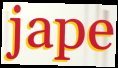
jape